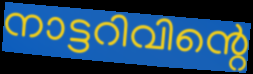
നാട്ടറിവിന്റെ